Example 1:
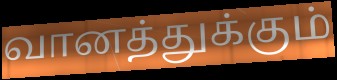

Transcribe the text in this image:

வானத்துக்கும்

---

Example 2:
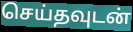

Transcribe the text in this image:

செய்தவுடன்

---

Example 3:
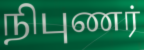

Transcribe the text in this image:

நிபுணர்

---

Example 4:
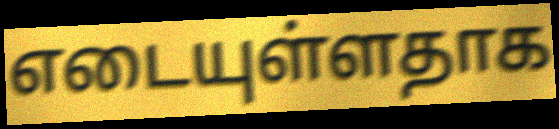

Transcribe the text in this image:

எடையுள்ளதாக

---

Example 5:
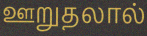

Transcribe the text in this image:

ஊறுதலால்